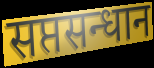
सप्तसन्धान